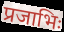
प्रजाभिः